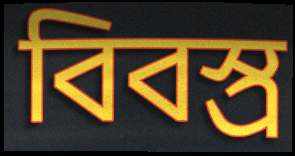
বিবস্ত্র